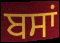
ਬਸਾਂ